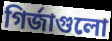
গির্জাগুলো